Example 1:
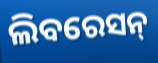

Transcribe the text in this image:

ଲିବରେସନ୍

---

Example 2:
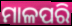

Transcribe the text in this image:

ମାଳପରି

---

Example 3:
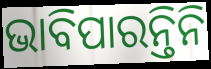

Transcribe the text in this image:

ଭାବିପାରନ୍ତିନି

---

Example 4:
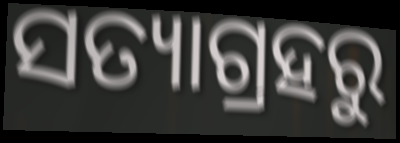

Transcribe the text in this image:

ସତ୍ୟାଗ୍ରହରୁ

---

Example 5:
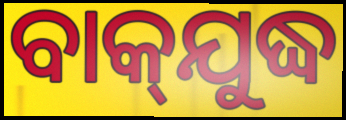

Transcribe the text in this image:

ବାକ୍‌ଯୁଦ୍ଧ